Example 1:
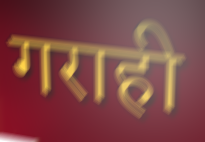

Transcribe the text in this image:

गराही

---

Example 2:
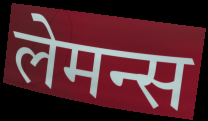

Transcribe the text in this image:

लेमन्स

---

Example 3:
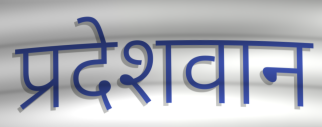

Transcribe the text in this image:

प्रदेशवान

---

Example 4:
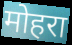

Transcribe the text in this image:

मोहरा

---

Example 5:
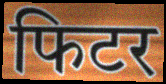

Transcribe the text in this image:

फिटर